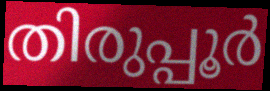
തിരുപ്പൂർ